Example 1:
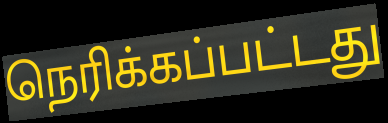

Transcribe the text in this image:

நெரிக்கப்பட்டது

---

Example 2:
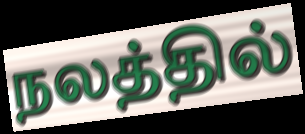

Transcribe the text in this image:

நலத்தில்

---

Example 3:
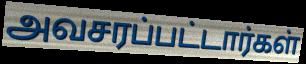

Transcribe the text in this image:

அவசரப்பட்டார்கள்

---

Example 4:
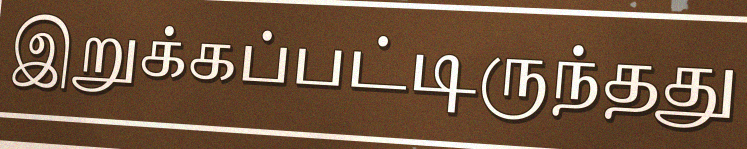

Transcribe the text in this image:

இறுக்கப்பட்டிருந்தது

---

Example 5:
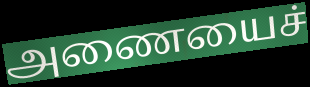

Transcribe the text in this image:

அணையைச்